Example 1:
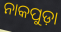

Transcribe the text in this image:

ନାକପୁଡ଼ା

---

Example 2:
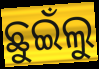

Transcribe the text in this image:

ଛୁଇଁଲୁ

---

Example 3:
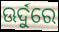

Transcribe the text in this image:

ଊର୍ଦୁରେ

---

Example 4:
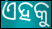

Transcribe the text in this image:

ଏହକୁ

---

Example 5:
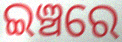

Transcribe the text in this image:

ଇଞ୍ଚରେ